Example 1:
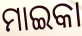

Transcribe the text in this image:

ମାଇକା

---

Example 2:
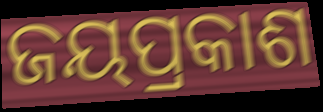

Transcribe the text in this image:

ଜୟପ୍ରକାଶ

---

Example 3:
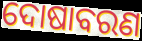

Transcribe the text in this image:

ଦୋଷାବରଣ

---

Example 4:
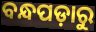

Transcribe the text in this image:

ବନ୍ଧପଡ଼ାରୁ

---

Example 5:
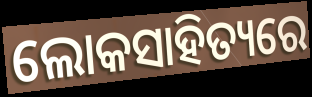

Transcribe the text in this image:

ଲୋକସାହିତ୍ୟରେ